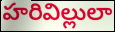
హరివిల్లులా